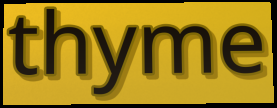
thyme